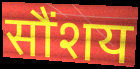
सौंशय